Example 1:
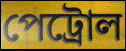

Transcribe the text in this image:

পেট্ৰোল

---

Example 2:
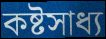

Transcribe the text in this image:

কষ্টসাধ্য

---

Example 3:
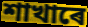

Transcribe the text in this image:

শাখাৰে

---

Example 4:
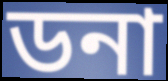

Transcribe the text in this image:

ডনা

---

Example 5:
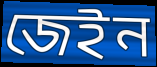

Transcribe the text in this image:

জেইন